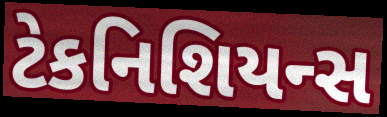
ટેકનિશિયન્સ